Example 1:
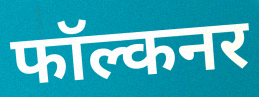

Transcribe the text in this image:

फॉल्कनर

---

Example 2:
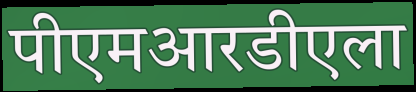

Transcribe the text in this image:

पीएमआरडीएला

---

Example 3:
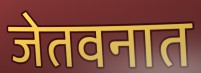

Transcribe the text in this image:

जेतवनात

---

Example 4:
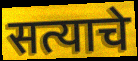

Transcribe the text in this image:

सत्याचे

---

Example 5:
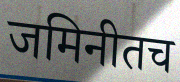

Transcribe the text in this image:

जमिनीतच